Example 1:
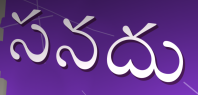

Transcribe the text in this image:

సనదు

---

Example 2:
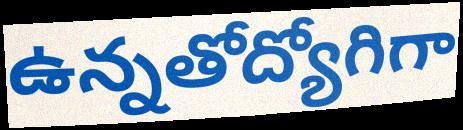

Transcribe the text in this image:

ఉన్నతోద్యోగిగా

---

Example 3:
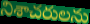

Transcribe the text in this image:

నిశాచరులను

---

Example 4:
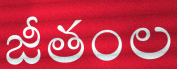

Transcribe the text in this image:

జీతంల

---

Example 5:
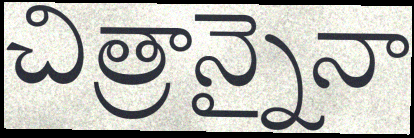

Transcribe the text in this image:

చిత్రాన్నైనా